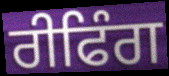
ਰੀਫਿੰਗ